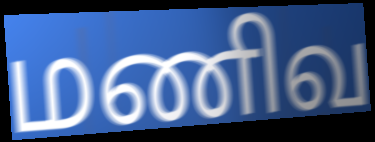
மணிவ